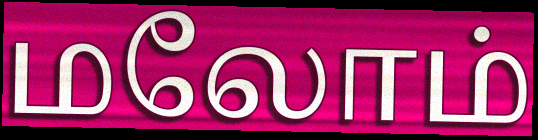
மலோம்